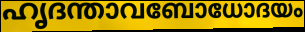
ഹൃദന്താവബോധോദയം